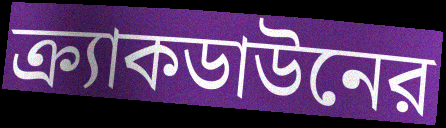
ক্র্যাকডাউনের